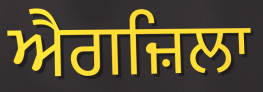
ਐਗਜ਼ਿਲਾ